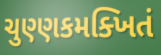
ચુણ્ણકમક્ખિતં